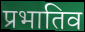
प्रभातिव